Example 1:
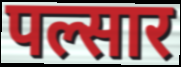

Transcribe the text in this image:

पल्सार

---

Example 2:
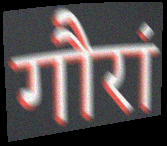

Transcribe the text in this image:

गौरां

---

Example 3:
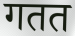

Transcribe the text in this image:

गतत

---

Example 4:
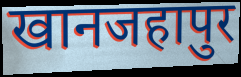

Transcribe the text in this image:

खानजहापुर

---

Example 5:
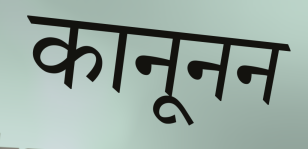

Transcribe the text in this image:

कानूनन